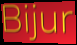
Bijur